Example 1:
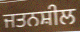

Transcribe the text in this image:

ਜਤਨਸ਼ੀਲ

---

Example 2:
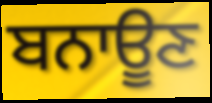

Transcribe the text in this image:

ਬਨਾਊਣ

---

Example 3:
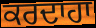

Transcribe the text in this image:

ਕਰਦਾਹਾ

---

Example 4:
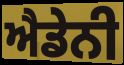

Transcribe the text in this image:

ਐਡੇਨੀ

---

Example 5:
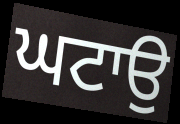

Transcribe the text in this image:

ਘਟਾਉ